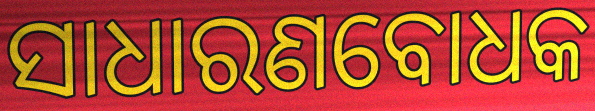
ସାଧାରଣବୋଧକ